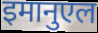
इमानुएल